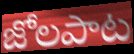
జోలపాట